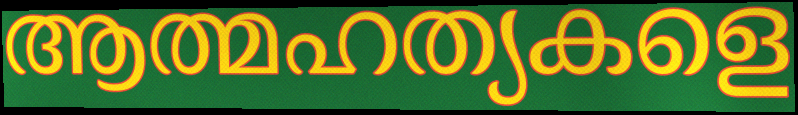
ആത്മഹത്യകളെ